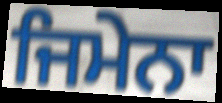
ਜਿਮੇਨਾ